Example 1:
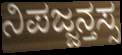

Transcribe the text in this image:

ನಿಪಜ್ಜನ್ತಸ್ಸ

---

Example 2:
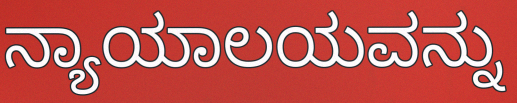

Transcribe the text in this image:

ನ್ಯಾಯಾಲಯವನ್ನು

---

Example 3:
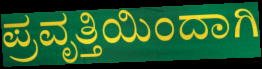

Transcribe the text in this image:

ಪ್ರವೃತ್ತಿಯಿಂದಾಗಿ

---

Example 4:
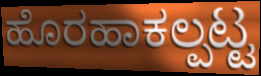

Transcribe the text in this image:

ಹೊರಹಾಕಲ್ಪಟ್ಟ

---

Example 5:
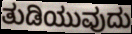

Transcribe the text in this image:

ತುಡಿಯುವುದು